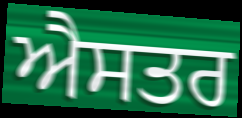
ਐਸਤਰ